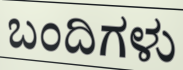
ಬಂದಿಗಳು